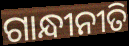
ଗାନ୍ଧୀନୀତି